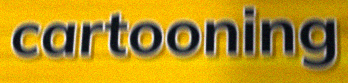
cartooning